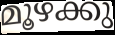
മൂഴക്കു